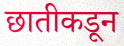
छातीकडून